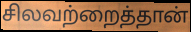
சிலவற்றைத்தான்